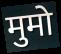
मुमो